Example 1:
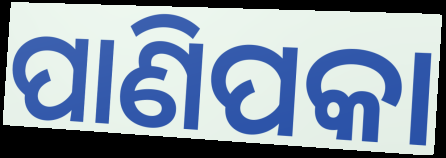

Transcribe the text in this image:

ପାଣିପକା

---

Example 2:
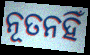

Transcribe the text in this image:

ନୂତନହିଁ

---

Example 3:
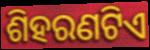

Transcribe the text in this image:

ଶିହରଣଟିଏ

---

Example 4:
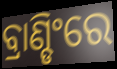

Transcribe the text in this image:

ବ୍ରାଣ୍ଡିଂରେ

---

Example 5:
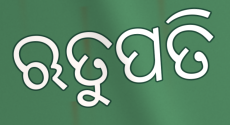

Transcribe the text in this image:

ଋତୁପତି